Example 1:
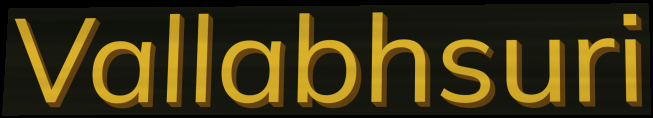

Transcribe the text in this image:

Vallabhsuri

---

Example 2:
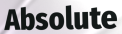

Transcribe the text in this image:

Absolute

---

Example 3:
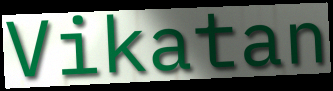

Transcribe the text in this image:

Vikatan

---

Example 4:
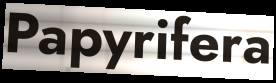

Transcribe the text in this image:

Papyrifera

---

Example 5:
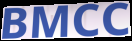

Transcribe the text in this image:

BMCC